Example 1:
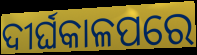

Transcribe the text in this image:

ଦୀର୍ଘକାଳପରେ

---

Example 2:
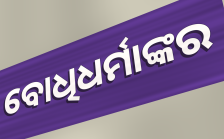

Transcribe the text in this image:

ବୋଧିଧର୍ମାଙ୍କର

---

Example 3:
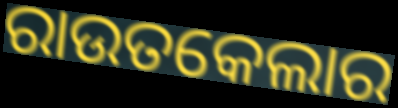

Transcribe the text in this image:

ରାଉତକେଲାର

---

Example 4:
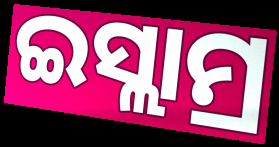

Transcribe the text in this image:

ଇସ୍ଲାମ୍ର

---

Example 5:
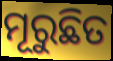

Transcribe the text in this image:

ମୂରୁଛିତ